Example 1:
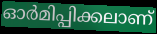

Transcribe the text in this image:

ഓർമിപ്പിക്കലാണ്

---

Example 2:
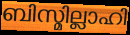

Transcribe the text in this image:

ബിസ്മില്ലാഹി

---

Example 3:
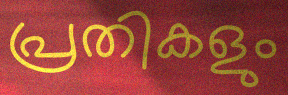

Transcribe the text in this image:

പ്രതികളും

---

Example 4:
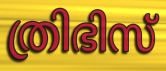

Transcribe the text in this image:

ത്രിഭിസ്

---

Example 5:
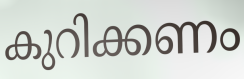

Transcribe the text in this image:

കുറിക്കണം